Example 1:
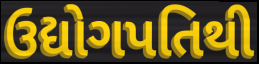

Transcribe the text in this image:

ઉદ્યોગપતિથી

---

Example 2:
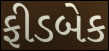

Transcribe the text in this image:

ફીડબેક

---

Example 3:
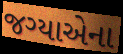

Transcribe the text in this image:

જગ્યાએના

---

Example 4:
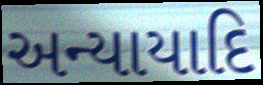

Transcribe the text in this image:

અન્યાયાદિ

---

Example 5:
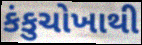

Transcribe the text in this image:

કંકુચોખાથી